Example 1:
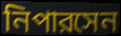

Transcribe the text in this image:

নিপারসেন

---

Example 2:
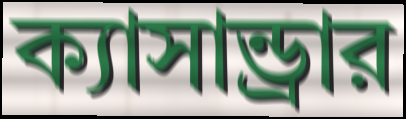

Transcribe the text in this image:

ক্যাসান্ড্রার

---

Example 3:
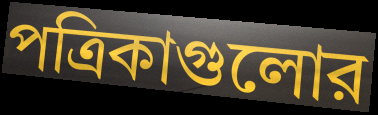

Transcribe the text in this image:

পত্রিকাগুলোর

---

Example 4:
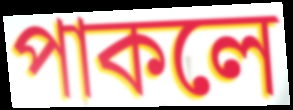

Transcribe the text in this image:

পাকলে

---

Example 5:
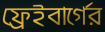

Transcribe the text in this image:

ফ্রেইবার্গের